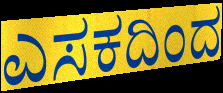
ಎಸಕದಿಂದ